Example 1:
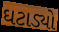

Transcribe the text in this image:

ઘટાડ્યો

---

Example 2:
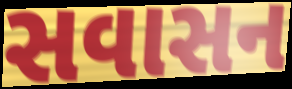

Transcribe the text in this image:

સવાસન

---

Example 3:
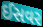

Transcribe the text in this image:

ઈસવર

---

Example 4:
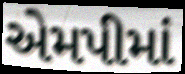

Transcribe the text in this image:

એમપીમાં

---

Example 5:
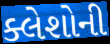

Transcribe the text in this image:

ક્લેશોની